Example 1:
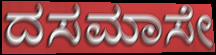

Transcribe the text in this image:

ದಸಮಾಸೇ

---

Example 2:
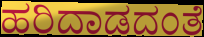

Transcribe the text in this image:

ಹರಿದಾಡದಂತೆ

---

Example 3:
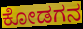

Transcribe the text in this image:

ಕೋಡಗನ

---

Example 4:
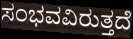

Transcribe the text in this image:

ಸಂಭವವಿರುತ್ತದೆ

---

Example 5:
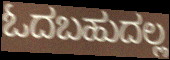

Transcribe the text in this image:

ಓದಬಹುದಲ್ಲ